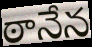
ఠానేన